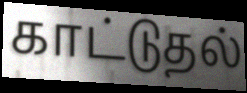
காட்டுதல்